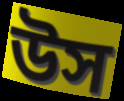
উস